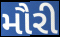
મૌરી